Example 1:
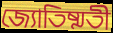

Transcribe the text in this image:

জ্যোতিষ্মতী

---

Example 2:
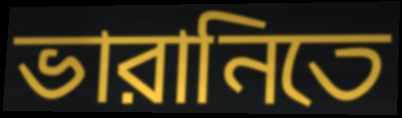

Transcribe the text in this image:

ভারানিতে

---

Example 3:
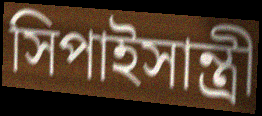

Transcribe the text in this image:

সিপাইসান্ত্রী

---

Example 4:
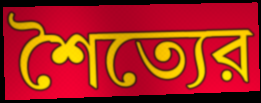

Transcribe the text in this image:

শৈত্যের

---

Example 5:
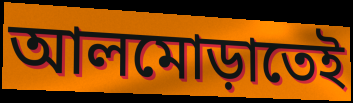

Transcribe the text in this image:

আলমোড়াতেই